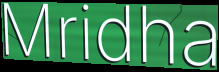
Mridha